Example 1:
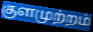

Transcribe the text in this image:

குளமுற்றம்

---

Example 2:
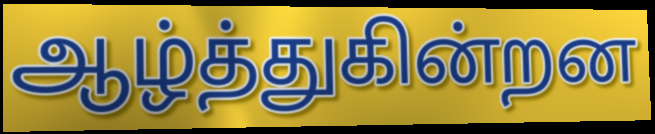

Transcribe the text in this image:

ஆழ்த்துகின்றன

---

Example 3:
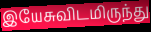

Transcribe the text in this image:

இயேசுவிடமிருந்து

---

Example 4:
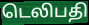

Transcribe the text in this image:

டெலிபதி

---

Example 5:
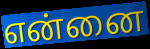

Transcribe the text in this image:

என்னை